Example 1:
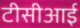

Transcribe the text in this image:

टीसीआई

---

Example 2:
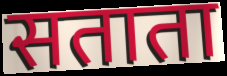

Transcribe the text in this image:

सताता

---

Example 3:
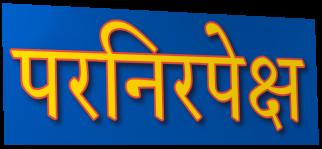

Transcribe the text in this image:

परनिरपेक्ष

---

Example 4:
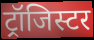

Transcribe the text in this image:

ट्रॉजिस्टर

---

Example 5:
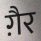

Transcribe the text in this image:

ग़ैर